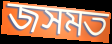
জসমত